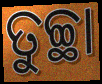
ତୁଚ୍ଛା